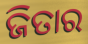
ଜିତାର